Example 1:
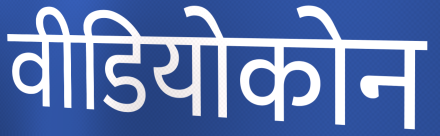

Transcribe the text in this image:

वीडियोकोन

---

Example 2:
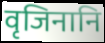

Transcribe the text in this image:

वृजिनानि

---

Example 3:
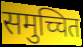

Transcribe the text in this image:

समुच्चित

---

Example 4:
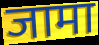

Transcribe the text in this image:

जामा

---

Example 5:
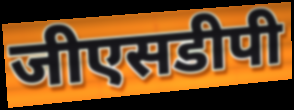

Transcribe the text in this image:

जीएसडीपी